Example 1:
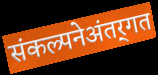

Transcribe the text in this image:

संकल्पनेअंतर्गत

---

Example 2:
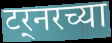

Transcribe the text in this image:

टर्नरच्या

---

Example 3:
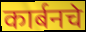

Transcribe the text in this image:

कार्बनचे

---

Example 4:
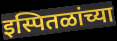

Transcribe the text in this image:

इस्पितळांच्या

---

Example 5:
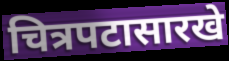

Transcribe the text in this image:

चित्रपटासारखे